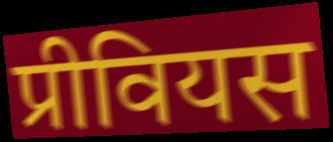
प्रीवियस